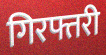
गिरफ्तरी